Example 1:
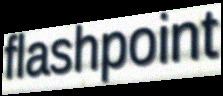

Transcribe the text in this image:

flashpoint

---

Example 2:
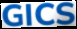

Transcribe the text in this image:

GICS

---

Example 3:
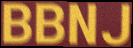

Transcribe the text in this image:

BBNJ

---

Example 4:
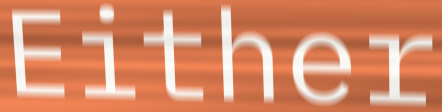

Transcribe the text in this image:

Either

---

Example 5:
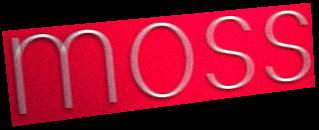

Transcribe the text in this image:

moss